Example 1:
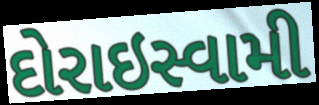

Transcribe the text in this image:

દોરાઇસ્વામી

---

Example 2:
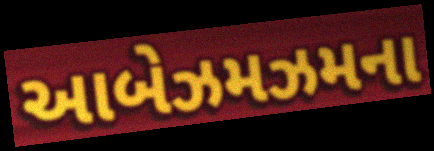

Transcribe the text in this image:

આબેઝમઝમના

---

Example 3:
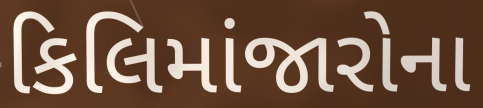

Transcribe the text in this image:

કિલિમાંજારોના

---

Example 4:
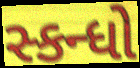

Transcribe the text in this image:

સ્કન્ધો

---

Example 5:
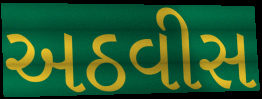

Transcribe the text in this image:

અઠવીસ